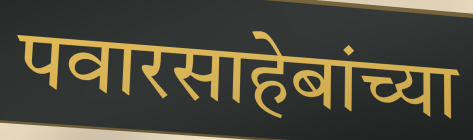
पवारसाहेबांच्या